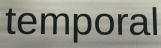
temporal